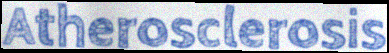
Atherosclerosis